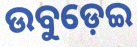
ଉବୁଡ଼େଇ